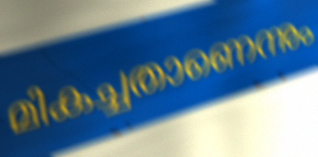
മികച്ചതാണെന്നും